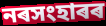
নৰসংহাৰৰ